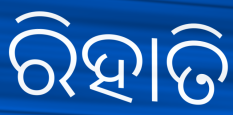
ରିହାତି